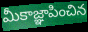
మీకాజ్ఞాపించిన